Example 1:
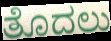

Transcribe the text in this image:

ತೊದಲು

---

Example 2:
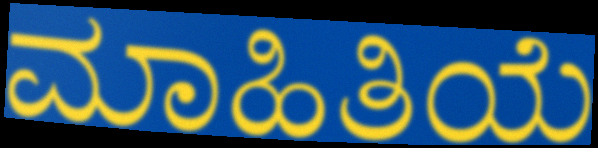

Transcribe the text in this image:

ಮಾಹಿತಿಯೆ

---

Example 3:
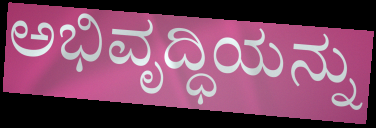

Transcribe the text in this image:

ಅಭಿವೃದ್ಧಿಯನ್ನು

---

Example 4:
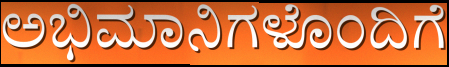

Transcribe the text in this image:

ಅಭಿಮಾನಿಗಳೊಂದಿಗೆ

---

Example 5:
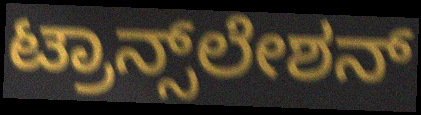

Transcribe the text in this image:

ಟ್ರಾನ್ಸ್‌ಲೇಶನ್